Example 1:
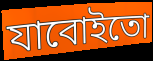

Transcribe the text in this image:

যাবোইতো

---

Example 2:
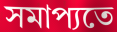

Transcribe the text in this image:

সমাপ্যতে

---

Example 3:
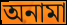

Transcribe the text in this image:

অনামা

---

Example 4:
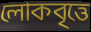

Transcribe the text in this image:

লোকবৃত্তে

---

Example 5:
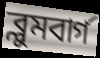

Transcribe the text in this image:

ব্লুমবার্গ